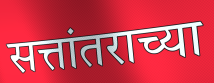
सत्तांतराच्या